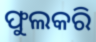
ଫୁଲକରି